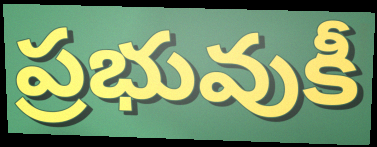
ప్రభువుకీ